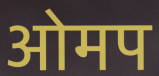
ओमप